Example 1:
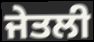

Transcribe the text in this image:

ਜੇਤਲੀ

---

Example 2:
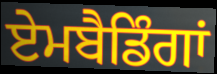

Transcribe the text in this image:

ਏਮਬੈਡਿੰਗਾਂ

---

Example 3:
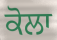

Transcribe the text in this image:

ਕੋਲਾ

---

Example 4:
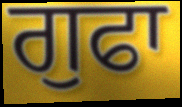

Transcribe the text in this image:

ਗੁਫਾ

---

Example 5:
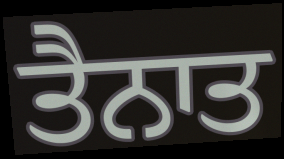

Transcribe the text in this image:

ਤੈਨਾਤ